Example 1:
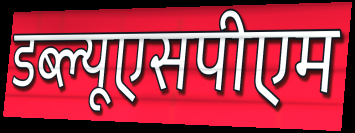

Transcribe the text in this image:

डब्ल्यूएसपीएम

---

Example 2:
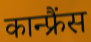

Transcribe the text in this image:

कान्फ्रैंस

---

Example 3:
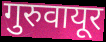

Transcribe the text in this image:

गुरुवायूर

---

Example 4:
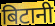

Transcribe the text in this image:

बिटानी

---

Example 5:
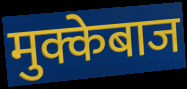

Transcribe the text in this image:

मुक्केबाज